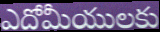
ఎదోమీయులకు